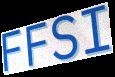
FFSI